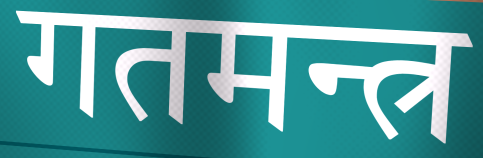
गतमन्त्र